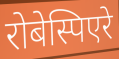
रोबेस्पिएरे